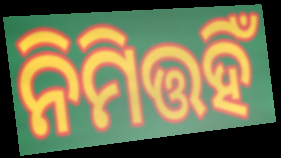
ନିମିତ୍ତହିଁ